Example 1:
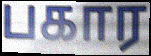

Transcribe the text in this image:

பகார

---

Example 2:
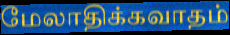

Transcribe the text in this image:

மேலாதிக்கவாதம்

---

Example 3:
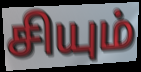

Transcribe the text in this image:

சியும்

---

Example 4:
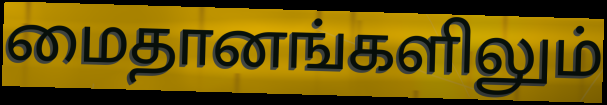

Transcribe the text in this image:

மைதானங்களிலும்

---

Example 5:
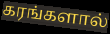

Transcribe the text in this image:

கரங்களால்